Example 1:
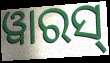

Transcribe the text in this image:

ୱାରସ୍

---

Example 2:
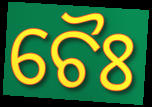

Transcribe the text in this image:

ଚୈଃ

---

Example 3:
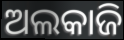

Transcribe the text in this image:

ଅଲକାଜି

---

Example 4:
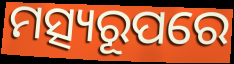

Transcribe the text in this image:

ମତ୍ସ୍ୟରୂପରେ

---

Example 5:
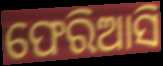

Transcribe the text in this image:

ଫେରିଆସି